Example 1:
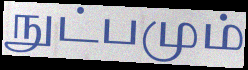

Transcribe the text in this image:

நுட்பமும்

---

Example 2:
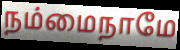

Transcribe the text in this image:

நம்மைநாமே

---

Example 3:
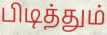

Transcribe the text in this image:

பிடித்தும்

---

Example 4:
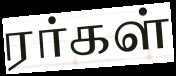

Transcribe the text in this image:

ரர்கள்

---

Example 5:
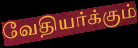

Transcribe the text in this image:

வேதியர்க்கும்